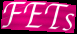
FETs